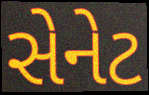
સેનેટ